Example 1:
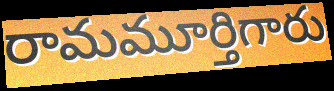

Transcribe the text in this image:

రామమూర్తిగారు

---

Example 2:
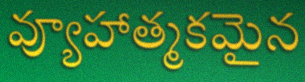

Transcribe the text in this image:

వ్యూహాత్మకమైన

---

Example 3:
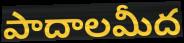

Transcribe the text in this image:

పాదాలమీద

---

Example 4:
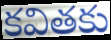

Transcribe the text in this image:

కవితకు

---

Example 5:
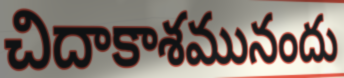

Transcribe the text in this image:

చిదాకాశమునందు